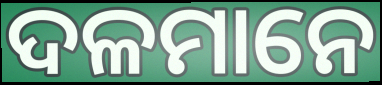
ଦଳମାନେ